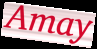
Amay